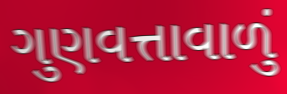
ગુણવત્તાવાળું